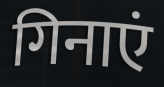
गिनाएं